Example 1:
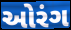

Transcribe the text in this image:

ઓરંગ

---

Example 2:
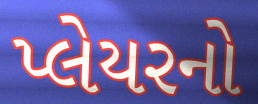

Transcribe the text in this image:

પ્લેયરનો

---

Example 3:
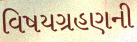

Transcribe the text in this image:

વિષયગ્રહણની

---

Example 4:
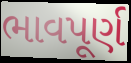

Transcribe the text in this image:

ભાવપૂર્ણ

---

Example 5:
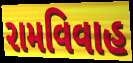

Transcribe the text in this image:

રામવિવાહ